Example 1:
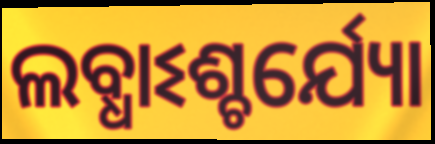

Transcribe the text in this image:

ଲବ୍ଧାଽଶ୍ଚର୍ଯ୍ୟୋ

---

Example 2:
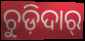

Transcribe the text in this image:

ଚୁଡ଼ିଦାର୍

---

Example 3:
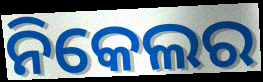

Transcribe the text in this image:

ନିକେଲର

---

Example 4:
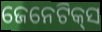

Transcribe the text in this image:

ଜେନେଟିକ୍‌ସ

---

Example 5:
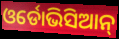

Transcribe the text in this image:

ଓର୍ଡୋଭିସିଆନ୍